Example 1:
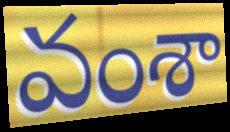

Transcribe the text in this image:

వంశా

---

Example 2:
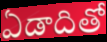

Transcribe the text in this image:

ఏడాదితో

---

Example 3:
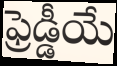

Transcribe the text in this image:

ఫ్రెడ్డీయే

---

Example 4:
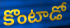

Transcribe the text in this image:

కొంటాడో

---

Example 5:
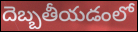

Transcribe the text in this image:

దెబ్బతీయడంలో